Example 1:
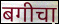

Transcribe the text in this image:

बगीचा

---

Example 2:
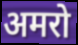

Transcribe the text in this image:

अमरो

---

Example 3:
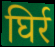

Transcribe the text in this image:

घिर्र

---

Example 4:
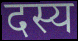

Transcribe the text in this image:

दस्य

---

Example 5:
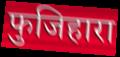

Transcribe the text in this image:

फुजिहारा